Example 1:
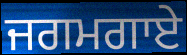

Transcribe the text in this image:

ਜਗਮਗਾਏ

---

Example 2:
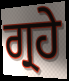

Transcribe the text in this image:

ਗ੍ਰਹੇ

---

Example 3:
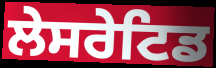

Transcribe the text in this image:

ਲੇਸਰੇਟਿਡ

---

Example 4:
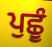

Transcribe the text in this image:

ਪੁਛੂੰ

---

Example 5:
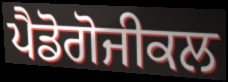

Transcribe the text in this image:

ਪੈਡੋਗੋਜੀਕਲ